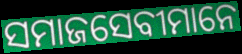
ସମାଜସେବୀମାନେ